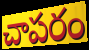
చాపరం